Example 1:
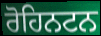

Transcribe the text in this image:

ਰੋਹਿਨਟਨ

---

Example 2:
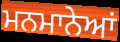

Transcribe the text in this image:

ਮਨਮਾਨੇਆਂ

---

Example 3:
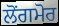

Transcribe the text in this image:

ਲੋਂਗਮੋਰ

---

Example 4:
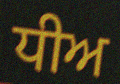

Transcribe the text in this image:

ਧੀਅ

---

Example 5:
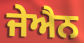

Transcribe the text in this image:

ਜੇਐਨ